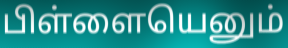
பிள்ளையெனும்